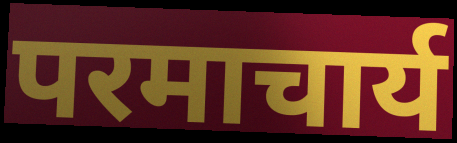
परमाचार्य